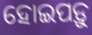
ହୋଇପଡ଼ୁ